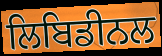
ਲਿਬਿਡੀਨਲ